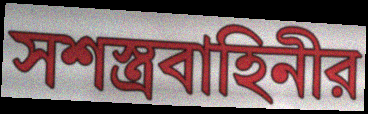
সশস্ত্রবাহিনীর